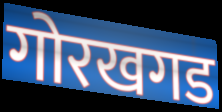
गोरखगड